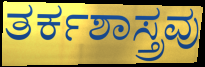
ತರ್ಕಶಾಸ್ತ್ರವು